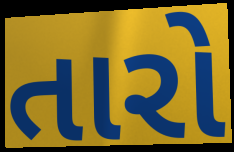
તારો